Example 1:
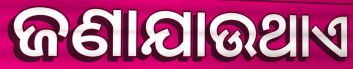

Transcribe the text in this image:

ଜଣାଯାଉଥାଏ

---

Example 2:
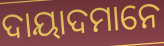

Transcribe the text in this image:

ଦାୟାଦମାନେ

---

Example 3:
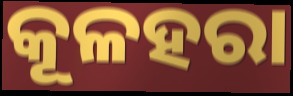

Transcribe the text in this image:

କୂଳହରା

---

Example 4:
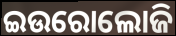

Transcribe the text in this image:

ଇଉରୋଲୋଜି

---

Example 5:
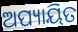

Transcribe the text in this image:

ଅପ୍ୟାୟିତ